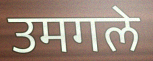
उमगले